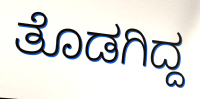
ತೊಡಗಿದ್ದ